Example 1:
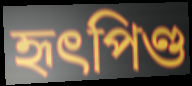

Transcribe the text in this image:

হৃৎপিণ্ড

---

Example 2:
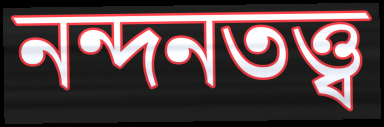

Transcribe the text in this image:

নন্দনতত্ত্ব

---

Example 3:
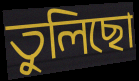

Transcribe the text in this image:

তুলিছো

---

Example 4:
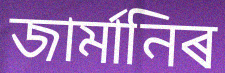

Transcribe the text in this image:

জাৰ্মানিৰ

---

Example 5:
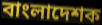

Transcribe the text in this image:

বাংলাদেশক